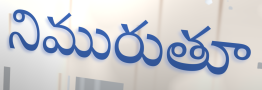
నిమురుతూ